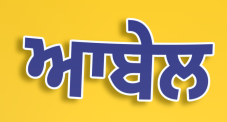
ਆਬੇਲ